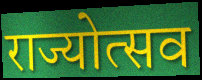
राज्योत्सव